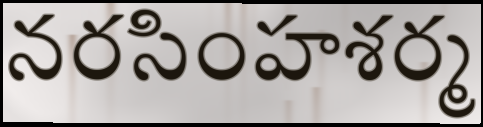
నరసింహశర్మ